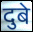
दुबे